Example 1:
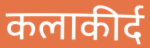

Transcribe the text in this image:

कलाकीर्द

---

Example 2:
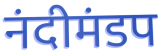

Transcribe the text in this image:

नंदीमंडप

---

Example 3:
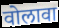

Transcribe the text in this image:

वोलावा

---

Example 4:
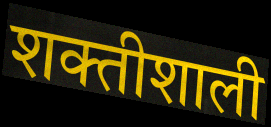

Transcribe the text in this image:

शक्‍तीशाली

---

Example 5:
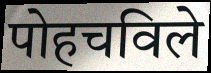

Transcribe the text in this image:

पोहचविले